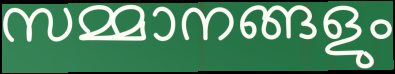
സമ്മാനങ്ങളും